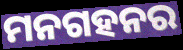
ମନଗହନର